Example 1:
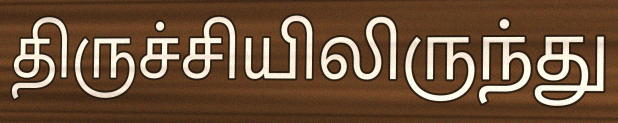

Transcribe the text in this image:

திருச்சியிலிருந்து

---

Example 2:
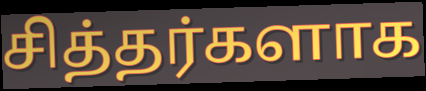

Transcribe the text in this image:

சித்தர்களாக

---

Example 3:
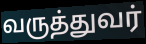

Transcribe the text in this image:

வருத்துவர்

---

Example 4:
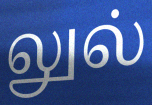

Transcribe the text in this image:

லுல்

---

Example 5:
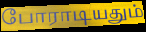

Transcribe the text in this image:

போராடியதும்